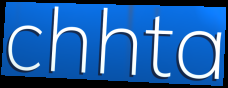
chhta